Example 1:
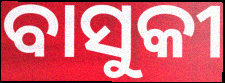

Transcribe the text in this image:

ବାସୁକୀ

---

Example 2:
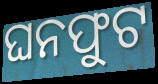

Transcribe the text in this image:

ଘନଫୁଟ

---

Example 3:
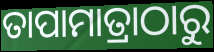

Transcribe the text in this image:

ତାପାମାତ୍ରାଠାରୁ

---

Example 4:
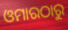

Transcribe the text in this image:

ଓମାରଠାରୁ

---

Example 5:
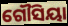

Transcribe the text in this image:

ଗୌସିୟା